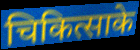
चिकित्साके